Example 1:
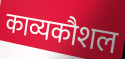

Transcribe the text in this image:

काव्यकौशल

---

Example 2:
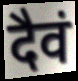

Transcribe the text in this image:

दैवं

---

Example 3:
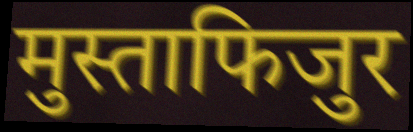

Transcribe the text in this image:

मुस्ताफिजुर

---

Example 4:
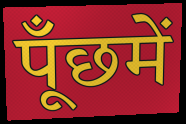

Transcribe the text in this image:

पूँछमें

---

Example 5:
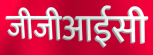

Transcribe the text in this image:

जीजीआईसी